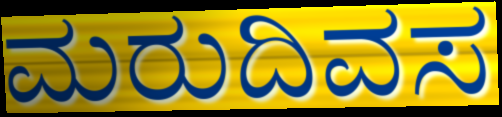
ಮರುದಿವಸ